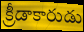
క్రీడాకారుడు